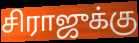
சிராஜுக்கு